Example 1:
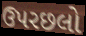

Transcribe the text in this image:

ઉપરછલો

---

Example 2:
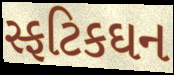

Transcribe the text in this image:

સ્ફટિકઘન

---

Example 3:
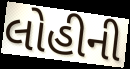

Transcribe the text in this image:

લોહીની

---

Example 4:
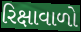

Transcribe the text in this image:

રિક્ષાવાળો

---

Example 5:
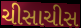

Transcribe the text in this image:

ચીસાચીસ